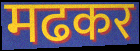
मढकर